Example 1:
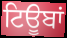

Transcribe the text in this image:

ਟਿਊਬਾਂ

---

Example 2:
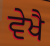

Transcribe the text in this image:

ਵੇਖੈ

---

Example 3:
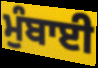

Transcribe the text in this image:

ਮੁੰਬਾਈ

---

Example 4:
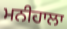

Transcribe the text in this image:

ਮਨੀਹਾਲਾ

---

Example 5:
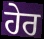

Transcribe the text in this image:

ਹੇਰ